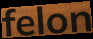
felon